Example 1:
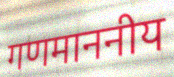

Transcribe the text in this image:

गणमाननीय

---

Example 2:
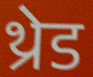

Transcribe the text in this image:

थ्रेड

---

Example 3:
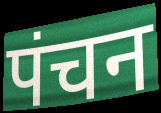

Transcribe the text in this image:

पंचन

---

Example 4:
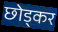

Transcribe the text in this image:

छोड्कर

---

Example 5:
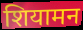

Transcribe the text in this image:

शियामन